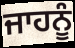
ਜਾਹਨੂੰ